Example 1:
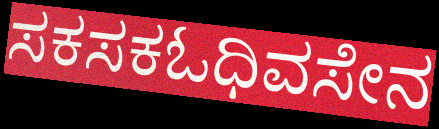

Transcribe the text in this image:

ಸಕಸಕಓಧಿವಸೇನ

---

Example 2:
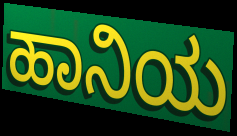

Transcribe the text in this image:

ಹಾನಿಯ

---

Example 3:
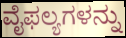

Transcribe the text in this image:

ವೈಫಲ್ಯಗಳನ್ನು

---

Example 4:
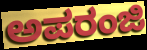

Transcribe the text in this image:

ಅಪರಂಜಿ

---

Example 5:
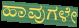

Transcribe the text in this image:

ಹಾವುಗಳೇ